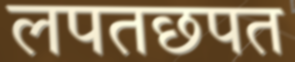
लपतछपत